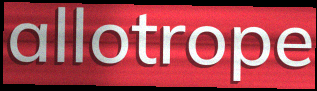
allotrope